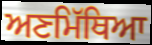
ਅਣਮਿੱਥਿਆ